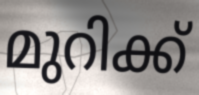
മുറിക്ക്